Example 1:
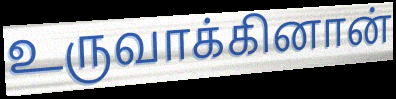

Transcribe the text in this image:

உருவாக்கினான்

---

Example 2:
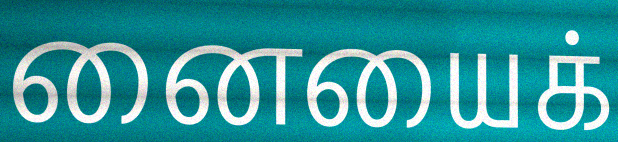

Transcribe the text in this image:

னையைக்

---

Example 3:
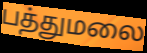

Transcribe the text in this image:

பத்துமலை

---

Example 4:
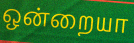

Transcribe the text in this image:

ஒன்றையா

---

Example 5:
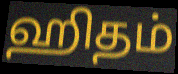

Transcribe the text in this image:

ஹிதம்